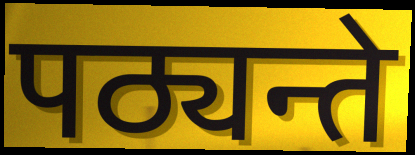
पठ्यन्ते